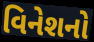
વિનેશનો